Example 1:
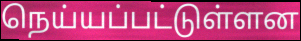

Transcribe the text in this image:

நெய்யப்பட்டுள்ளன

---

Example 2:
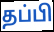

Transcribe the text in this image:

தப்பி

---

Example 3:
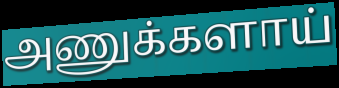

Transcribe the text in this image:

அணுக்களாய்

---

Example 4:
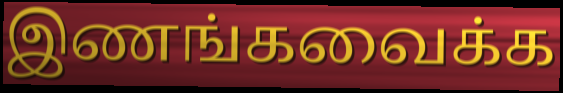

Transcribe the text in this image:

இணங்கவைக்க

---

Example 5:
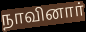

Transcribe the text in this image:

நாவினார்